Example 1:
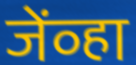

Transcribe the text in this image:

जेंव्हा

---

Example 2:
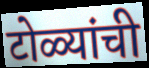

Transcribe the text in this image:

टोळ्यांची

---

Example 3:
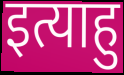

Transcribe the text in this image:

इत्याहु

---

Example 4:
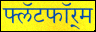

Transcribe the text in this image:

फ्लॅटफॉर्म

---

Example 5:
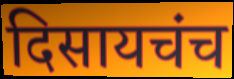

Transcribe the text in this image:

दिसायचंच